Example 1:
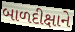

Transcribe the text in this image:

બાળદીક્ષાને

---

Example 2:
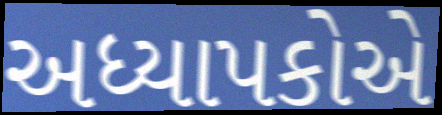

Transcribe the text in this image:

અધ્યાપકોએ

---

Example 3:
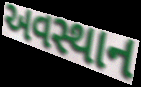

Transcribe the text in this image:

અવસ્થાન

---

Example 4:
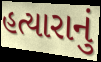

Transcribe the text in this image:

હત્યારાનું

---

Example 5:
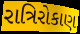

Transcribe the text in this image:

રાત્રિરોકાણ